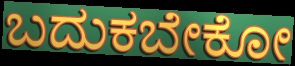
ಬದುಕಬೇಕೋ